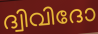
ദ്വിവിദോ